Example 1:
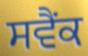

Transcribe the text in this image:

ਸਵੈਂਕ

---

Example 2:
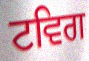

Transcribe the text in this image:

ਟਵਿਗ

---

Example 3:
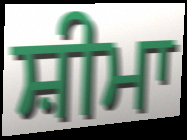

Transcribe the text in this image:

ਸ਼ੀਮਾ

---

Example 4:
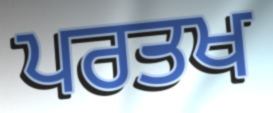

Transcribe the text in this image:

ਪਰਤਖ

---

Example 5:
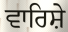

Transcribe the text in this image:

ਵਾਰਿਸ਼ੇ